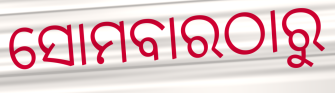
ସୋମବାରଠାରୁ